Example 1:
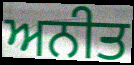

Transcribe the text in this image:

ਅਨੀਤ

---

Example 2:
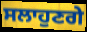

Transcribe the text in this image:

ਸਲਾਹੁਣਗੇ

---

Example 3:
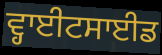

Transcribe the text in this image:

ਵ੍ਹਾਈਟਸਾਈਡ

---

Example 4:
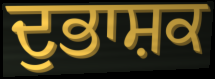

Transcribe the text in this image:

ਦੁਭਾਸ਼ਕ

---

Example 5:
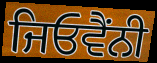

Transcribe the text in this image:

ਜਿਓਵੈਂਨੀ